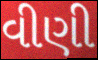
વીણી